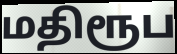
மதிரூப